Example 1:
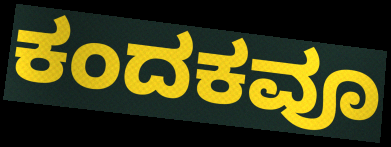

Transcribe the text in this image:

ಕಂದಕವೂ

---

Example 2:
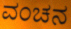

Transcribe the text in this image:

ವಂಚನ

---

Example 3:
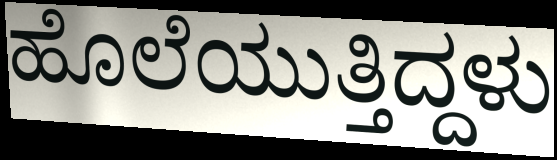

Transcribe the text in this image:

ಹೊಲೆಯುತ್ತಿದ್ದಳು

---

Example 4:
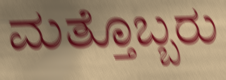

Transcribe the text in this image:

ಮತ್ತೊಬ್ಬರು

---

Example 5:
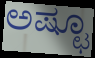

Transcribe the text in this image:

ಅಷ್ಟೂ